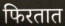
फिरतात